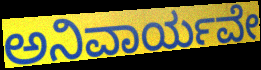
ಅನಿವಾರ್ಯವೇ